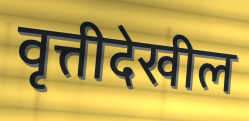
वृत्तीदेखील